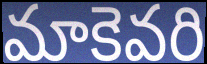
మాకెవరి